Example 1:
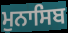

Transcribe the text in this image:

ਮੁਨਾਸਿਬ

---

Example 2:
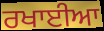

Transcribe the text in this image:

ਰਖਾਈਆ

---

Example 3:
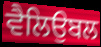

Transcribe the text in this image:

ਵੈਲਿਉਬਲ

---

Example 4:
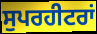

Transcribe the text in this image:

ਸੁਪਰਹੀਟਰਾਂ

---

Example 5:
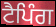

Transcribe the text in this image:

ਟੈਪਿੰਗ